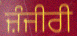
ਜ਼ੰਜੀਰੀ